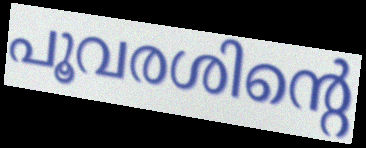
പൂവരശിന്റെ